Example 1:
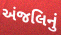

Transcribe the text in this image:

અંજલિનું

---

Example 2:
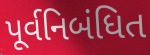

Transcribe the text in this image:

પૂર્વનિબંધિત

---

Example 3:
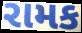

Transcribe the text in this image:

રામક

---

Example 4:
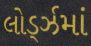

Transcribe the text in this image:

લોર્ડ્ઝમાં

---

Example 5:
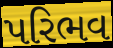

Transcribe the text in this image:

પરિભવ